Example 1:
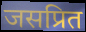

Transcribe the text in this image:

जसप्रित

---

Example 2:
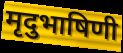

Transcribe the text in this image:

मृदुभाषिणी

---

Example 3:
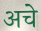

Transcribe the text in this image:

अचे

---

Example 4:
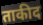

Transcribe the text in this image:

ताकीद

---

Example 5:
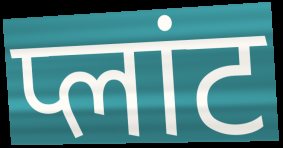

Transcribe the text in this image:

प्‍लांट